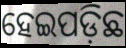
ହେଇପଡ଼ିଛ